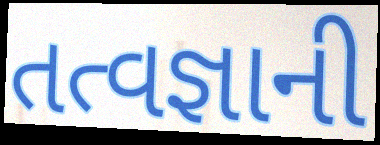
તત્વજ્ઞાની